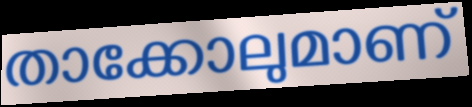
താക്കോലുമാണ്